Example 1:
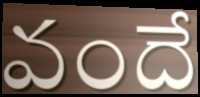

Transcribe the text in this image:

వందే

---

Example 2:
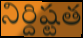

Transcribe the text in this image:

నిర్దిష్టత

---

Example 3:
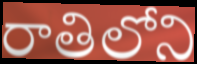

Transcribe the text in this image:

రాతిలోని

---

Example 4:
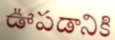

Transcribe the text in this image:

ఊపడానికి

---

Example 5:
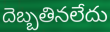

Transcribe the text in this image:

దెబ్బతినలేదు